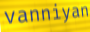
vanniyan